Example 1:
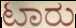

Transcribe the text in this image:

ಟಾರು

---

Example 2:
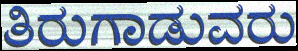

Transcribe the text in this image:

ತಿರುಗಾಡುವರು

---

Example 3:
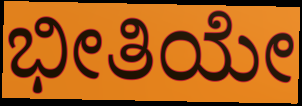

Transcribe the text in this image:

ಭೀತಿಯೇ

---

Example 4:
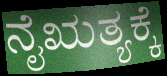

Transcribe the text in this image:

ನೈಋತ್ಯಕ್ಕೆ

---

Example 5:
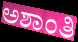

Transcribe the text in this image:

ಅಶಾಂತಿ